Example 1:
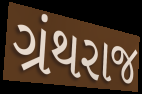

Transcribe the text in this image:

ગ્રંથરાજ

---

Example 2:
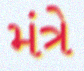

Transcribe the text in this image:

મંત્રે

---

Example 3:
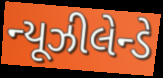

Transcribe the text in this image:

ન્યૂઝીલેન્ડે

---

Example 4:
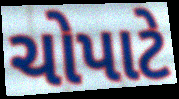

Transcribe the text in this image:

ચોપાટે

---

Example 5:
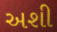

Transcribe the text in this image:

અશી